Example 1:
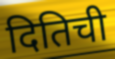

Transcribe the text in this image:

दितिची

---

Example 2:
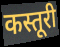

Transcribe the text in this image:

कस्तूरी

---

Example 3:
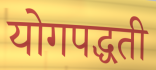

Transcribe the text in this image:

योगपद्धती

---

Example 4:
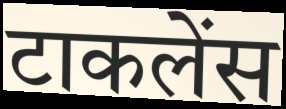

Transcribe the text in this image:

टाकलेंस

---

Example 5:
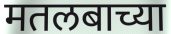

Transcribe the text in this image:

मतलबाच्या